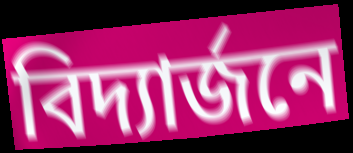
বিদ্যার্জনে